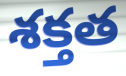
శక్తత